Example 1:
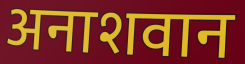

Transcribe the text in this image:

अनाशवान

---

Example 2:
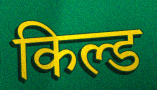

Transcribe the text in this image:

किल्ड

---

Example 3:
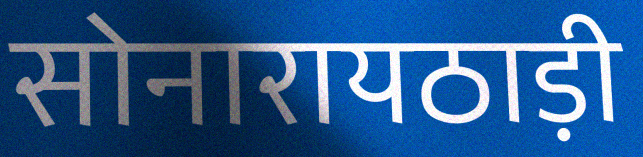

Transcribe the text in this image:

सोनारायठाड़ी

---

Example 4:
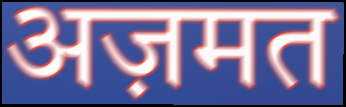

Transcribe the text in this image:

अज़मत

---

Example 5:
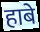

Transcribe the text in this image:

हाबे